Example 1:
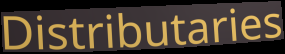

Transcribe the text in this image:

Distributaries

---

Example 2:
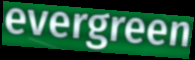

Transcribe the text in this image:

evergreen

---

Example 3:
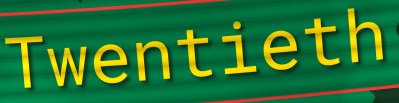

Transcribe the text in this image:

Twentieth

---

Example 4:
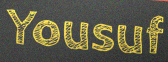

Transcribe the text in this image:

Yousuf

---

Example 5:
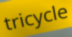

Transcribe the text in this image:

tricycle